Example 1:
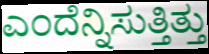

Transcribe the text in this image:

ಎಂದೆನ್ನಿಸುತ್ತಿತ್ತು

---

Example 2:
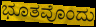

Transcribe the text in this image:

ಭೂತವೊಂದು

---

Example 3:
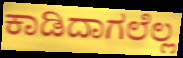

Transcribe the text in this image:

ಕಾಡಿದಾಗಲೆಲ್ಲ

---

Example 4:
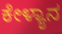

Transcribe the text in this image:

ಕೇಳ್ಯಾನ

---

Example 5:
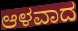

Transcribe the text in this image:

ಆಳವಾದ